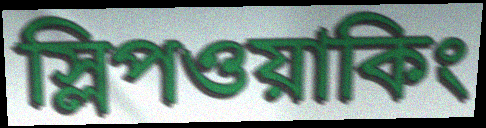
স্লিপওয়াকিং